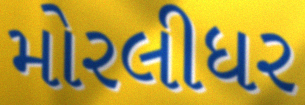
મોરલીધર